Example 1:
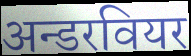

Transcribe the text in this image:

अन्डरवियर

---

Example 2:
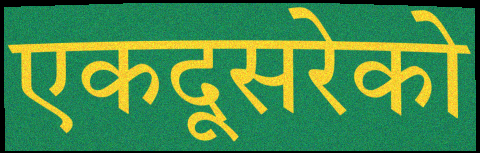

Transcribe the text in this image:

एकदूसरेको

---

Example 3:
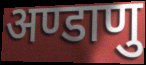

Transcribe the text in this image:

अण्डाणु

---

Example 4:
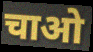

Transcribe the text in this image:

चाओ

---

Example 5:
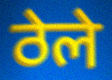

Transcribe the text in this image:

ठेले